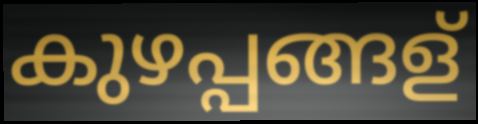
കുഴപ്പങ്ങള്